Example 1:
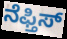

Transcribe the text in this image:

ನೆಫ್ತಿಸ್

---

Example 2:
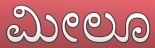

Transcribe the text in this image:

ಮೀಲೂ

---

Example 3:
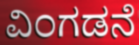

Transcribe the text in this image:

ವಿಂಗಡನೆ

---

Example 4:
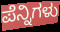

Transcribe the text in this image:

ಪೆನ್ನಿಗಳು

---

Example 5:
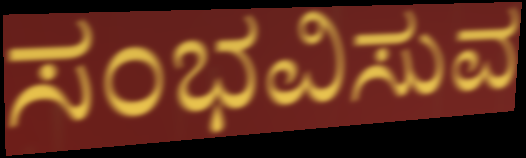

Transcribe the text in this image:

ಸಂಭವಿಸುವ